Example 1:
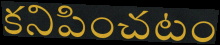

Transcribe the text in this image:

కనిపించటం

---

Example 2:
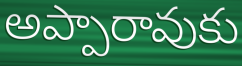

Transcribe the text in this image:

అప్పారావుకు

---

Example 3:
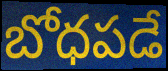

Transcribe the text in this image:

బోధపడే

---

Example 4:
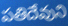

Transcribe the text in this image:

పతిదేవుని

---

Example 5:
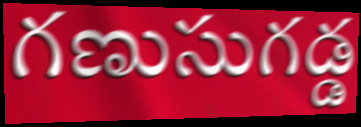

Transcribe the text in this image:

గణుసుగడ్డ